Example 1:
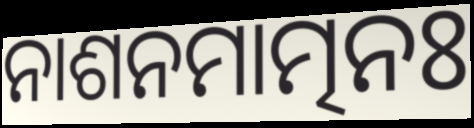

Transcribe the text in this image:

ନାଶନମାତ୍ମନଃ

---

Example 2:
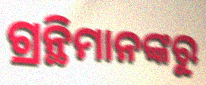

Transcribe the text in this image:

ଗ୍ରନ୍ଥିମାନଙ୍କରୁ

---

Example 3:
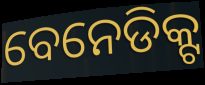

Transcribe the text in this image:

ବେନେଡିକ୍ଟ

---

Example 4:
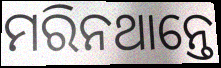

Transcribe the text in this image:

ମରିନଥାନ୍ତେ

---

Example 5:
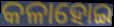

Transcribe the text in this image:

କଳାହୋଇ